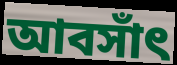
আবসাঁৎ